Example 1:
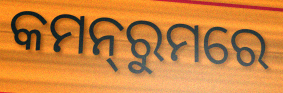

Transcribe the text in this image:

କମନ୍‌ରୁମରେ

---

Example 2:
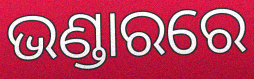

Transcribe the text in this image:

ଭଣ୍ଡାରରେ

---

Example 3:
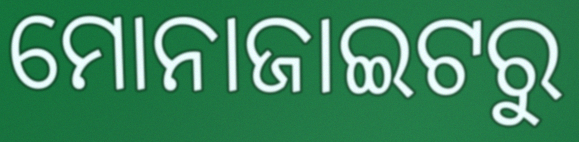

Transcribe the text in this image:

ମୋନାଜାଇଟରୁ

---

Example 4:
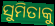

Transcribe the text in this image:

ସୁମିତାକୁ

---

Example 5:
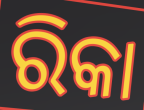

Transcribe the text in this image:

ରିକା